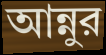
আন্নুর